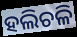
ହଲିଚଳି